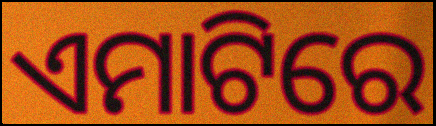
ଏମାଟିରେ